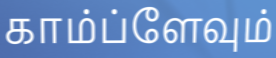
காம்ப்ளேவும்